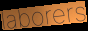
laborers